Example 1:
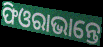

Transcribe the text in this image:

ଫିଓରାଭାନ୍ତେ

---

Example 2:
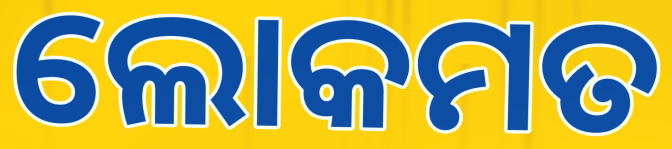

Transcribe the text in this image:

ଲୋକମତ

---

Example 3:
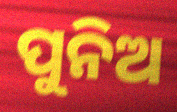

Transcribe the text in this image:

ପୁନିଅ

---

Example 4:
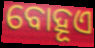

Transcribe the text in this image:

ବୋହୂଏ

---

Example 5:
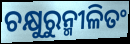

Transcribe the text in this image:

ଚକ୍ଷୁରୁନ୍ମୀଳିତଂ